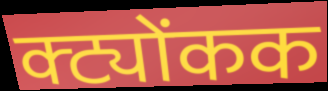
क्ट्योंकक